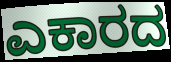
ಎಕಾರದ